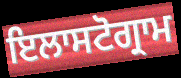
ਇਲਾਸਟੋਗ੍ਰਾਮ